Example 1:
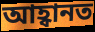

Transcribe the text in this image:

আহ্বানত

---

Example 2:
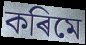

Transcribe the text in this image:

কৰিমে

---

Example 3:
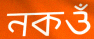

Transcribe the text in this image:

নকওঁ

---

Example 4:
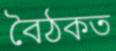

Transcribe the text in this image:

বৈঠকত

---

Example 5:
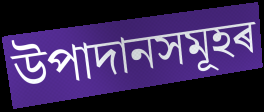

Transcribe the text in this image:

উপাদানসমূহৰ